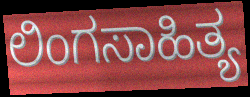
ಲಿಂಗಸಾಹಿತ್ಯ